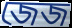
জেজ